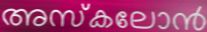
അസ്കലോൻ